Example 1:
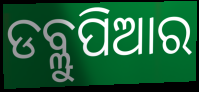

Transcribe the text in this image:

ଡବ୍ଲୁପିଆର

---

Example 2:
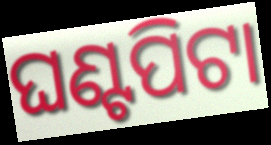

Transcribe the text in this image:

ଘଣ୍ଟପିଟା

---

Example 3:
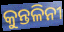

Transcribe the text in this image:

କୁନ୍ତଳିନୀ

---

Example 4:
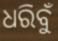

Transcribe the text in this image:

ଧରିବୁଁ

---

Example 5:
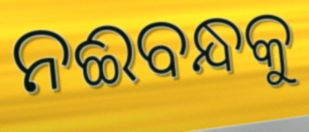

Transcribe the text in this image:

ନଈବନ୍ଧକୁ